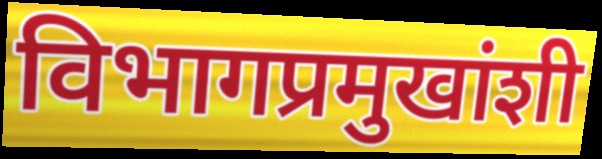
विभागप्रमुखांशी